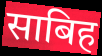
साबिह